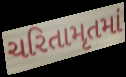
ચરિતામૃતમાં